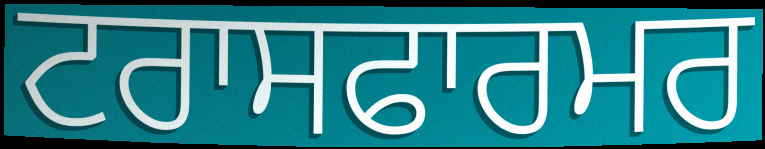
ਟਰਾਸਫਾਰਮਰ